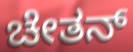
ಚೇತನ್